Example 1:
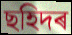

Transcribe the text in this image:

ছহিদৰ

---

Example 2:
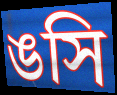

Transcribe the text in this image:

ঙসি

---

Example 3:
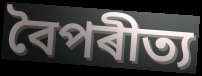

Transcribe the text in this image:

বৈপৰীত্য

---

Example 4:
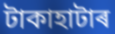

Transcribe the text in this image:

টাকাহাটাৰ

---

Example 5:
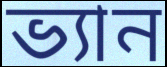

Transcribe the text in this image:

ভ্যান